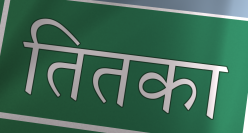
तितका